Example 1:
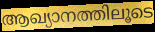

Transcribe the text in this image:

ആഖ്യാനത്തിലൂടെ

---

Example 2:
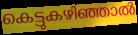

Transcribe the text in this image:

കെട്ടുകഴിഞ്ഞാൽ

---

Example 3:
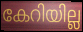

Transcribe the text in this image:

കേറിയില്ല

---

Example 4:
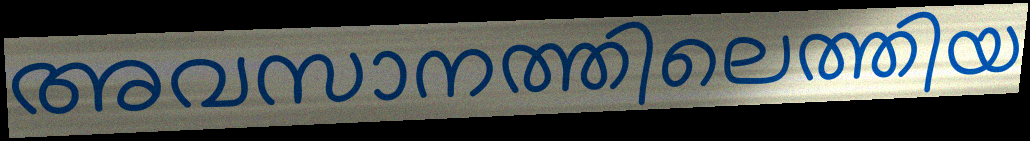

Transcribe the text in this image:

അവസാനത്തിലെത്തിയ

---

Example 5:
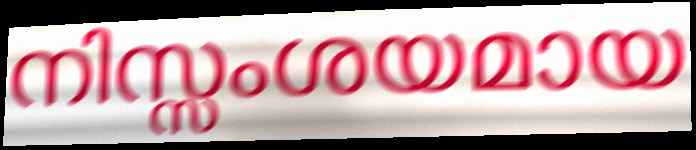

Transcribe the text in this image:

നിസ്സംശയമായ